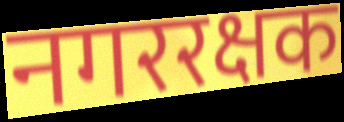
नगररक्षक